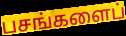
பசங்களைப்